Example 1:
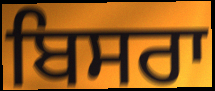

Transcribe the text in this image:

ਬਿਸਰਾ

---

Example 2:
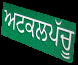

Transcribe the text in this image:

ਅਟਕਲਪੱਚੂ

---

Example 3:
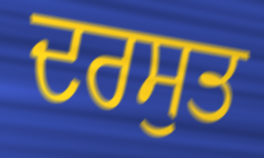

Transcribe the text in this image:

ਦਰਸੁਤ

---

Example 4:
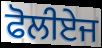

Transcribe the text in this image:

ਫੋਲੀਏਜ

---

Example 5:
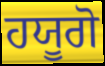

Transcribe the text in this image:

ਹਯੂਗੋ